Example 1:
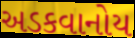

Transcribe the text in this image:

અડકવાનોય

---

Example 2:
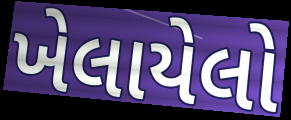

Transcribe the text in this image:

ખેલાયેલો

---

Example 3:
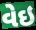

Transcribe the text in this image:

વેઇ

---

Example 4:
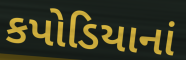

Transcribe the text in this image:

કપોડિયાનાં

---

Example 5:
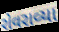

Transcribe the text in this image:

રોવરાવ્યા